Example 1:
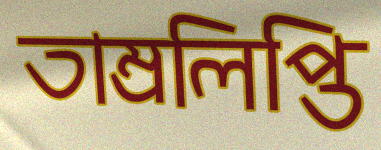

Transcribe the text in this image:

তাম্রলিপ্তি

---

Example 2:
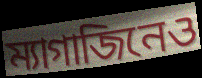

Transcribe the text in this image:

ম্যাগাজিনেও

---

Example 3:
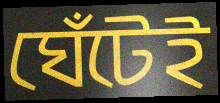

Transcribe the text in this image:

ঘেঁটেই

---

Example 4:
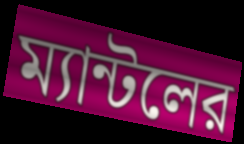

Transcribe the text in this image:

ম্যান্টলের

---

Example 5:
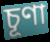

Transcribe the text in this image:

চূণা